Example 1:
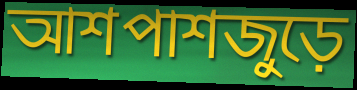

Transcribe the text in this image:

আশপাশজুড়ে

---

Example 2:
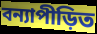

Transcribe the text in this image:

বন্যাপীড়িত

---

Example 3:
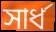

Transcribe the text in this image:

সার্ধ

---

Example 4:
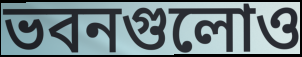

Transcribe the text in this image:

ভবনগুলোও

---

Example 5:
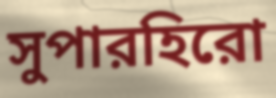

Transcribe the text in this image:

সুপারহিরো